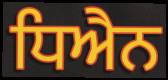
ਧਿਐਨ